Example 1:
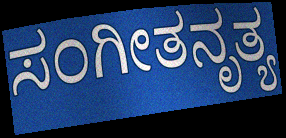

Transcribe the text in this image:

ಸಂಗೀತನೃತ್ಯ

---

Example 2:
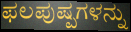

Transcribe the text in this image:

ಫಲಪುಷ್ಪಗಳನ್ನು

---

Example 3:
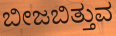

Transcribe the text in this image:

ಬೀಜಬಿತ್ತುವ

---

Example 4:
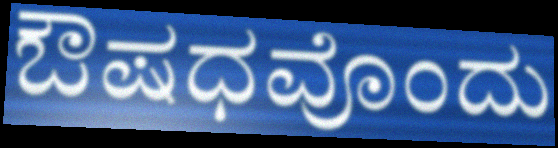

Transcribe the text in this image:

ಔಷಧವೊಂದು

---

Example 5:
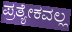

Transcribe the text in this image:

ಪ್ರತ್ಯೇಕವಲ್ಲ